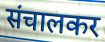
संचालकर